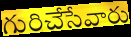
గురిచేసేవారు